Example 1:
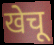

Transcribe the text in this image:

खेचू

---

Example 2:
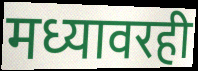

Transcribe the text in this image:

मध्यावरही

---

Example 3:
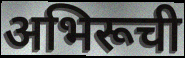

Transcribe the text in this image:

अभिरूची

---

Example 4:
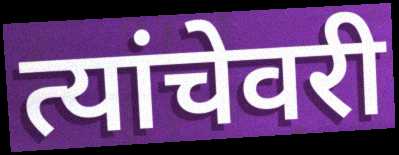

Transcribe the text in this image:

त्यांचेवरी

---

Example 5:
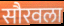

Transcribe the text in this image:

सौरवला